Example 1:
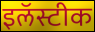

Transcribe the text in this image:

इलॅस्टीक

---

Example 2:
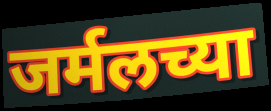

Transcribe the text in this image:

जर्मलच्या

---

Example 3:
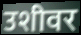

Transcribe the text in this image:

उशीवर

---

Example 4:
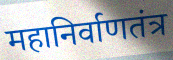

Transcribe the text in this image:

महानिर्वाणतंत्र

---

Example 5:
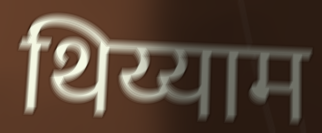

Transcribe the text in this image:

थिय्याम